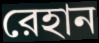
রেহান